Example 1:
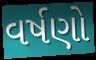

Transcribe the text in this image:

વર્ષણો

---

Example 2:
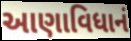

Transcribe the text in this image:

આણાવિધાનં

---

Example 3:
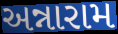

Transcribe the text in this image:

અન્નારામ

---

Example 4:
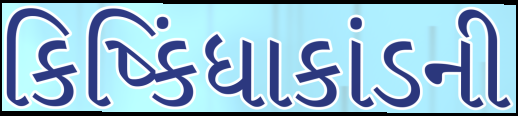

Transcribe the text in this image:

કિષ્કિંધાકાંડની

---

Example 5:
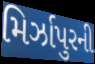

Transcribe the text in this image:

મિર્ઝાપુરની